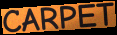
CARPET